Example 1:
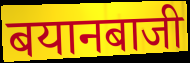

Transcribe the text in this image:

बयानबाजी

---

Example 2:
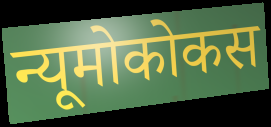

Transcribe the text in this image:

न्यूमोकोकस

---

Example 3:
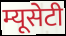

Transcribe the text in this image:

म्यूसेटी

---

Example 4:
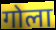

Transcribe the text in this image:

गोला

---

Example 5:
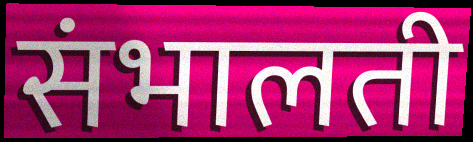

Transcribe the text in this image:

संभालती